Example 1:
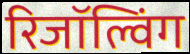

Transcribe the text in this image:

रिजॉल्विंग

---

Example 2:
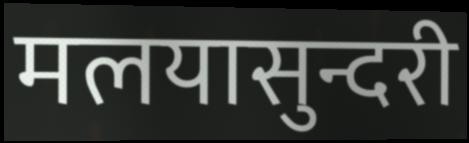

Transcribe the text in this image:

मलयासुन्दरी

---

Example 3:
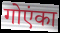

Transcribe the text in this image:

गोएंका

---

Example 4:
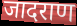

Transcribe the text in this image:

जादराण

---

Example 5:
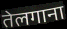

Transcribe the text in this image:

तेलगाना